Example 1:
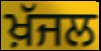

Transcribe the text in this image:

ਖ਼ੱਜਲ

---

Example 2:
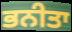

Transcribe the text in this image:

ਭਨੀਤਾ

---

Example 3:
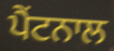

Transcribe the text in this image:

ਪੈਂਟਨਾਲ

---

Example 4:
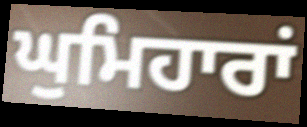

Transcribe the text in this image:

ਘੁਮਿਹਾਰਾਂ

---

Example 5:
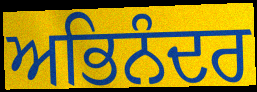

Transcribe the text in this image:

ਅਭਿਨੰਦਰ